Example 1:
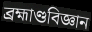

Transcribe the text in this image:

ব্ৰহ্মাণ্ডবিজ্ঞান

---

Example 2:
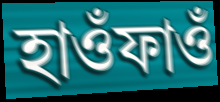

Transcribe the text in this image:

হাওঁফাওঁ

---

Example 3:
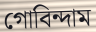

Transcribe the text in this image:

গোবিন্দাম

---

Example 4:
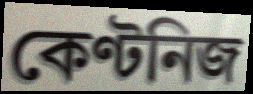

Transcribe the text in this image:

কেণ্টনিজ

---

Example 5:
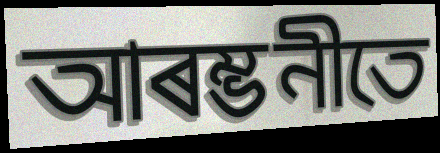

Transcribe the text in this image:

আৰম্ভনীতে